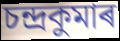
চন্দ্ৰকুমাৰ